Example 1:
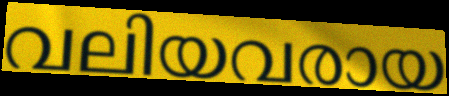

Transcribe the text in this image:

വലിയവരായ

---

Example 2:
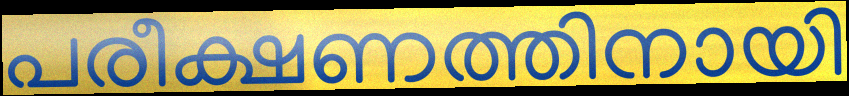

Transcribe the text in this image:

പരീക്ഷണത്തിനായി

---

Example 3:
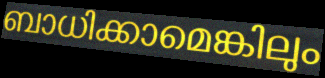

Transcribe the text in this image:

ബാധിക്കാമെങ്കിലും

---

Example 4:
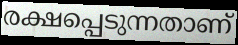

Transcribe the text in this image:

രക്ഷപ്പെടുന്നതാണ്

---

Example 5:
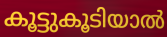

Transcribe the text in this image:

കൂട്ടുകൂടിയാൽ